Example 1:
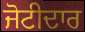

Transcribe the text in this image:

ਜੋਟੀਦਾਰ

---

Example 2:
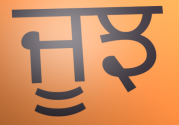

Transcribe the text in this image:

ਜੂਝ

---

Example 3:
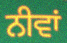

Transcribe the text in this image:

ਨੀਵਾਂ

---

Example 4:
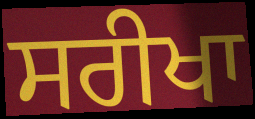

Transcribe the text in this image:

ਸਰੀਖਾ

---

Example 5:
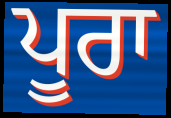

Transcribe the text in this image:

ਪੂਰਾ